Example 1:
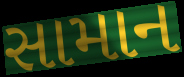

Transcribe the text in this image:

સામાન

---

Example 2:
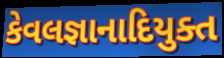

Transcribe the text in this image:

કેવલજ્ઞાનાદિયુક્ત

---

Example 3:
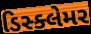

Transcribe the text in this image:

ડિસ્ક્લેમર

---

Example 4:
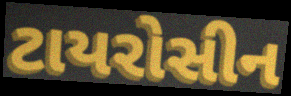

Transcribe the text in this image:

ટાયરોસીન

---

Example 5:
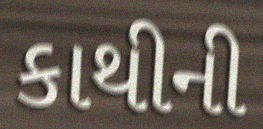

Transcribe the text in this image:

કાથીની